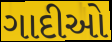
ગાદીઓ